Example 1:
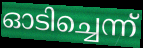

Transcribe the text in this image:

ഓടിച്ചെന്ന്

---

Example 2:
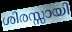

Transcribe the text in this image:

ശിരസ്സായി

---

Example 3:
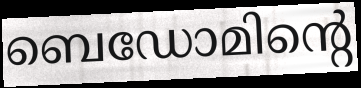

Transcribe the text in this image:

ബെഡോമിന്റെ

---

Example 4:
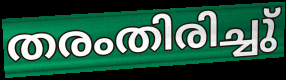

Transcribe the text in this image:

തരംതിരിച്ചു്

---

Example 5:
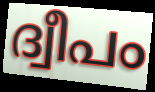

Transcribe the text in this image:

ദ്വീപം